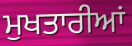
ਮੁਖਤਾਰੀਆਂ